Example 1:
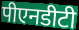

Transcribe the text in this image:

पीएनडीटी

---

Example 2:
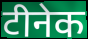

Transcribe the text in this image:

टीनेक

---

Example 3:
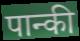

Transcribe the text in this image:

पान्की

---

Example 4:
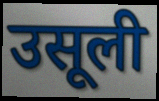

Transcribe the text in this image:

उसूली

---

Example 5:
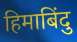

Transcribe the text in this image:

हिमाबिंदु